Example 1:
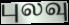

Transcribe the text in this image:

புலவு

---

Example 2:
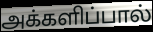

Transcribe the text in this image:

அக்களிப்பால்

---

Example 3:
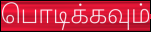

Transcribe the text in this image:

பொடிக்கவும்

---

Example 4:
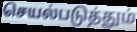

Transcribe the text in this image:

செயல்படுத்தும்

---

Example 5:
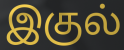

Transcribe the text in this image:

இகுல்